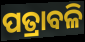
ପତ୍ରାବଳି